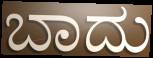
ಬಾದು